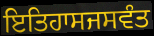
ਇਤਿਹਾਸਜਸਵੰਤ